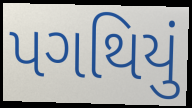
પગથિયું